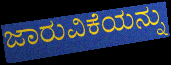
ಜಾರುವಿಕೆಯನ್ನು